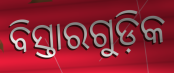
ବିସ୍ତାରଗୁଡ଼ିକ